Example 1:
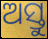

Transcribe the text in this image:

ଅସ୍ତୁ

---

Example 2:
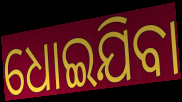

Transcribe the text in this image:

ଧୋଇଯିବା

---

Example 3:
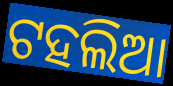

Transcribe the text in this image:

ଟହଲିଆ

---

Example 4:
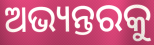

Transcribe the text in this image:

ଅଭ୍ୟନ୍ତରକୁ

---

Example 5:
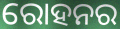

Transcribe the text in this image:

ରୋହନର